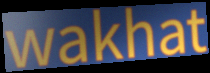
wakhat